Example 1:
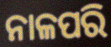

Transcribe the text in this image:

ନାଳପରି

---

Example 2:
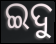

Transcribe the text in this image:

ଇଦୁ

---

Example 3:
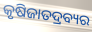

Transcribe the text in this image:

କୃଷିଜାତଦ୍ରବ୍ୟର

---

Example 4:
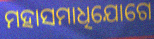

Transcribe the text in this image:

ମହାସମାଧିଯୋଗେ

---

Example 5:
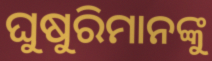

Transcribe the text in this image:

ଘୁଷୁରିମାନଙ୍କୁ